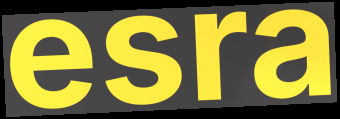
esra